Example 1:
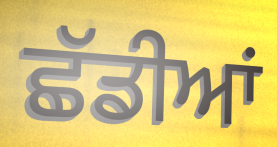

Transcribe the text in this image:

ਛੱਡੀਆਂ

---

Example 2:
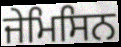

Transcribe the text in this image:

ਜੇਮਿਸਿਨ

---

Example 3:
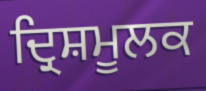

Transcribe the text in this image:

ਦ੍ਰਿਸ਼ਮੂਲਕ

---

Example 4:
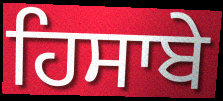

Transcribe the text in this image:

ਹਿਸਾਬੇ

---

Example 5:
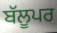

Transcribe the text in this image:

ਬੱਲੂਪਰ